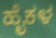
ಹೈಕಳ